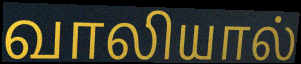
வாலியால்